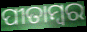
ପୀତାମ୍ବର